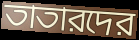
তাতারদের